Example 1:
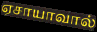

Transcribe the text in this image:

ஏசாயாவால்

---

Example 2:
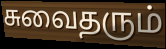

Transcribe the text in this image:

சுவைதரும்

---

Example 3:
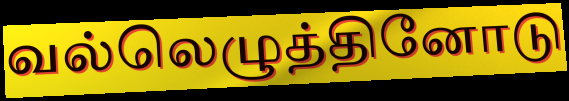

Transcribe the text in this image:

வல்லெழுத்தினோடு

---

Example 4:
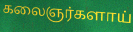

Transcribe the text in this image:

கலைஞர்களாய்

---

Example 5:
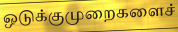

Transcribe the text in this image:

ஒடுக்குமுறைகளைச்